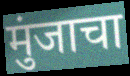
मुंजाचा